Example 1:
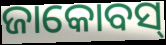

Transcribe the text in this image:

ଜାକୋବସ୍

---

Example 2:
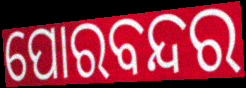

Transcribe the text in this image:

ପୋରବନ୍ଦର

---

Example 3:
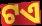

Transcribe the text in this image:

ଟଏ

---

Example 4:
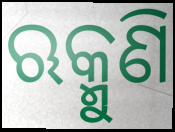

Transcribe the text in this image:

ଋକ୍ମୁଣି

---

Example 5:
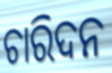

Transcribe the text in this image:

ଚାରିଦନ